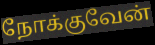
நோக்குவேன்